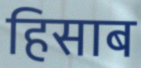
हिसाब